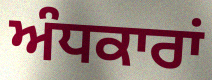
ਅੰਧਕਾਰਾਂ